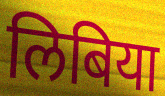
लिबिया